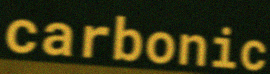
carbonic